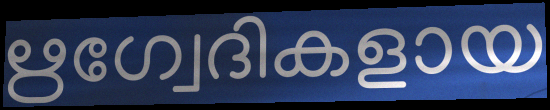
ഋഗ്വേദികളായ